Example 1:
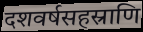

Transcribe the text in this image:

दशवर्षसहस्राणि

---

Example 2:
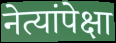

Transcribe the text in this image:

नेत्यांपेक्षा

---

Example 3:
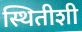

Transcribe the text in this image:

स्थितीशी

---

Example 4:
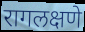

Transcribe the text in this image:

रागलक्षणे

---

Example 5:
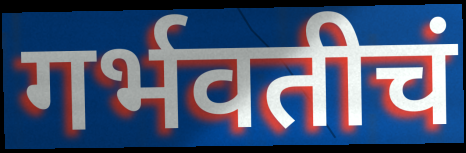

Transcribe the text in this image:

गर्भवतीचं